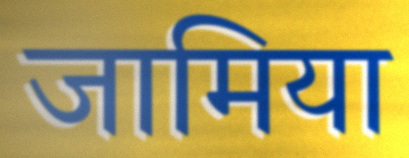
जामिया